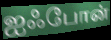
ஐஃபோன்